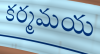
కర్మమయ